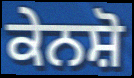
ਕੇਨਸ਼ੋ